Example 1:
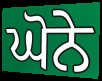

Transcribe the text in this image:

ਘੋਨੇ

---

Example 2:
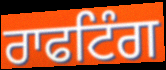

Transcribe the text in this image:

ਰਾਫਟਿੰਗ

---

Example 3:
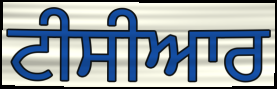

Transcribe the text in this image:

ਟੀਸੀਆਰ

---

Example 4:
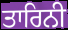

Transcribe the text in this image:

ਤਾਰਿਨੀ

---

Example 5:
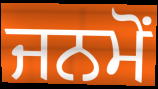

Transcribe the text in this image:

ਜਨਮੋਂ